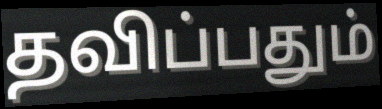
தவிப்பதும்